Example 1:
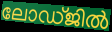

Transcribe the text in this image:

ലോഡ്ജിൽ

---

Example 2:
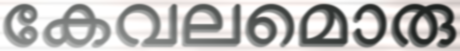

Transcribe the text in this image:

കേവലമൊരു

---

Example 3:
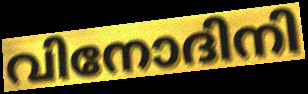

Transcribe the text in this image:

വിനോദിനി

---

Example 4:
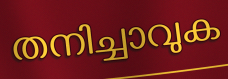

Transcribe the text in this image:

തനിച്ചാവുക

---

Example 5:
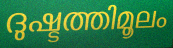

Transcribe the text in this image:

ദുഷ്ടത്തിമൂലം